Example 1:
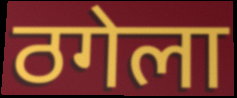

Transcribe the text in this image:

ठगेला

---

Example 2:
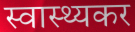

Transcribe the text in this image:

स्वास्थ्यकर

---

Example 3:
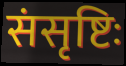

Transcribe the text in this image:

संसृष्टिः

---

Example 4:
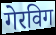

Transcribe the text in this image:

गेरविग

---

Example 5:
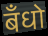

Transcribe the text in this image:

बँधो